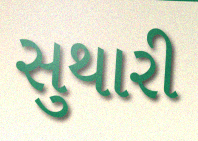
સુથારી